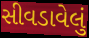
સીવડાવેલું